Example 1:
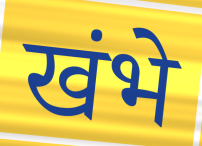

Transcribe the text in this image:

खंभे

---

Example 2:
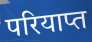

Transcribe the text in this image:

परियाप्त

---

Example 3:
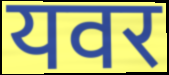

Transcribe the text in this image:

यवर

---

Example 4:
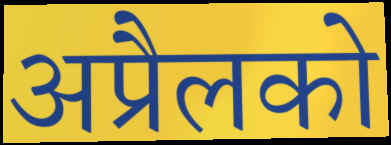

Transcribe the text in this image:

अप्रैलको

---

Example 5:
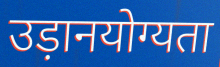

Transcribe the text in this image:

उड़ानयोग्यता